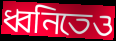
ধ্বনিতেও